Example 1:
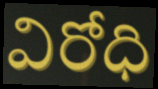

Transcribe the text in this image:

విరోధి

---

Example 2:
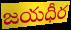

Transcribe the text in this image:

జయధీర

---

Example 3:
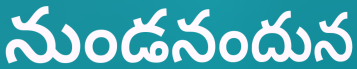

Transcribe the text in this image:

నుండనందున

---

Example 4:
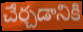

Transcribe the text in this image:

చేర్చడానికి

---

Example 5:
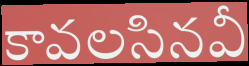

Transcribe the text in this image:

కావలసినవీ